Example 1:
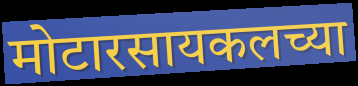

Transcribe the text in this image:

मोटारसायकलच्या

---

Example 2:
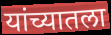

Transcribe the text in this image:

यांच्यातला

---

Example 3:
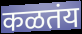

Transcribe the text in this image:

कळतंय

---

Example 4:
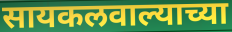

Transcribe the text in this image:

सायकलवाल्याच्या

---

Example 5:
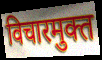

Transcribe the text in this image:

विचारमुक्त